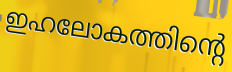
ഇഹലോകത്തിന്റെ